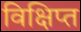
विक्षिप्त